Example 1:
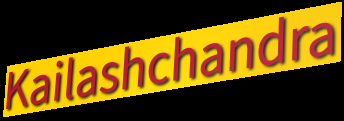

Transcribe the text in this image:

Kailashchandra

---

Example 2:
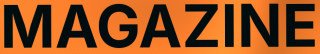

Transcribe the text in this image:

MAGAZINE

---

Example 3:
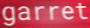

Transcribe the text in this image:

garret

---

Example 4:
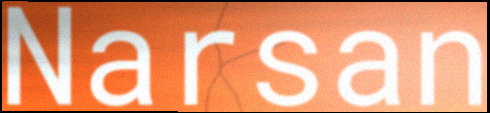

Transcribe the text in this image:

Narsan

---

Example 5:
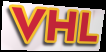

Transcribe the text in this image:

VHL